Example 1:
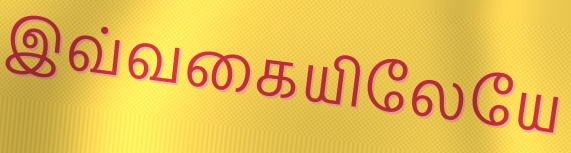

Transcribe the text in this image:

இவ்வகையிலேயே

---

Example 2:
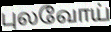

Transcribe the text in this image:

புலவோய்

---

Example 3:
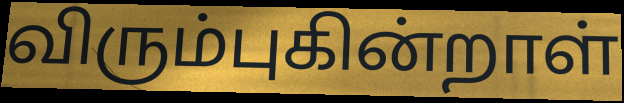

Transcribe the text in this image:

விரும்புகின்றாள்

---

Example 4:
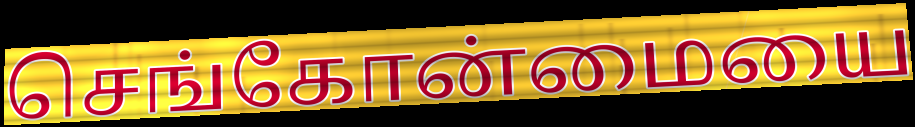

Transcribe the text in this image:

செங்கோன்மையை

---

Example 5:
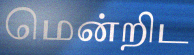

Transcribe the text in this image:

மென்றிட